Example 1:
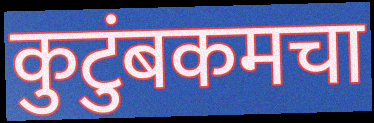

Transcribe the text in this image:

कुटुंबकमचा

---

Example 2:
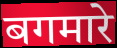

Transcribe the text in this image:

बगमारे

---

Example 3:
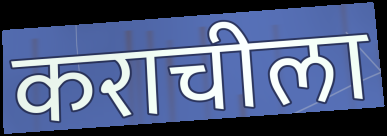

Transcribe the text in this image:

कराचीला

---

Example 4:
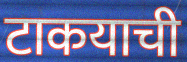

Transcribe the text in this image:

टाकयाची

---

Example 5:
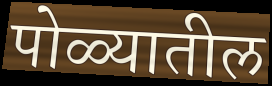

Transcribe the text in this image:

पोळ्यातील